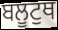
ਬਲੂਟੁਥ